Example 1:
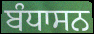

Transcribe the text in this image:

ਬੰਧਾਸਨ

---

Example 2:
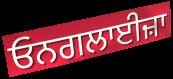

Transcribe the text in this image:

ਓਨਗਲਾਈਜ਼ਾ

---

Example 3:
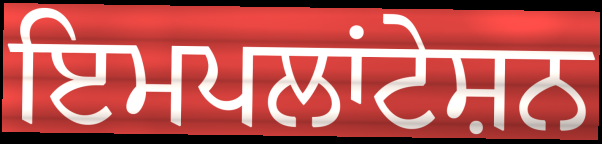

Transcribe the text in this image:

ਇਮਪਲਾਂਟੇਸ਼ਨ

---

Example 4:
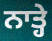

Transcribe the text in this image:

ਨਾਤ੍ਹੇ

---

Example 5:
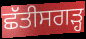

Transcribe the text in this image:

ਛੱਤੀਸਗਡ਼੍ਹ